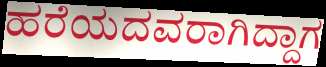
ಹರೆಯದವರಾಗಿದ್ದಾಗ